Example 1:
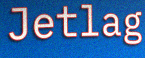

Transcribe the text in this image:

Jetlag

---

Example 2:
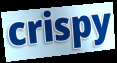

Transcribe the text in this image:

crispy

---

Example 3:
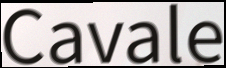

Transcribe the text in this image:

Cavale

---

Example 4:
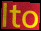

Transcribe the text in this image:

Ito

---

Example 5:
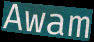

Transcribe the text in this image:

Awam